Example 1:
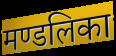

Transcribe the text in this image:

मण्डलिका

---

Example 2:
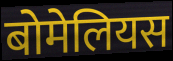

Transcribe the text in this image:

बोमेलियस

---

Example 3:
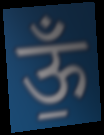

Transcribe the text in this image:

ऊँ॒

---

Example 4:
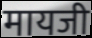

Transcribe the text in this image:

मायजी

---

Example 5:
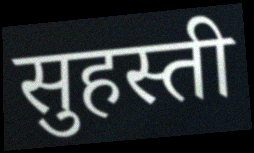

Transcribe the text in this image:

सुहस्ती